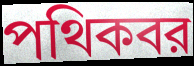
পথিকবর